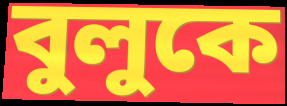
বুলুকে